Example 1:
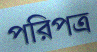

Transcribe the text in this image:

পরিপত্র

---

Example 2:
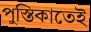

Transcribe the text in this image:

পুস্তিকাতেই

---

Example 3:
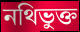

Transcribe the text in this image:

নথিভুক্ত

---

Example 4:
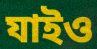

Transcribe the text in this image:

যাইও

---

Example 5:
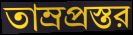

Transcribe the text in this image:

তাম্রপ্রস্তর